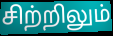
சிற்றிலும்